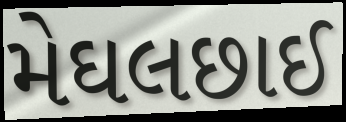
મેઘલછાઈ